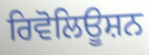
ਰਿਵੋਲਿਊਸ਼ਨ